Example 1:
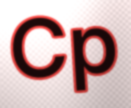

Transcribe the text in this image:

Cp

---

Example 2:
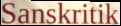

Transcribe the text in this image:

Sanskritik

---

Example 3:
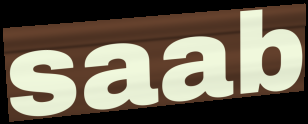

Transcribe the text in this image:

saab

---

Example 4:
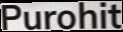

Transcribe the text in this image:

Purohit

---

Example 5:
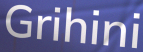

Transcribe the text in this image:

Grihini